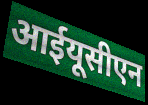
आईयूसीएन